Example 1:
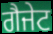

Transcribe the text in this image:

ਗੈਜੇਟ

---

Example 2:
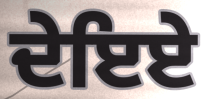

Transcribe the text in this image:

ਦੇਇਏ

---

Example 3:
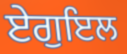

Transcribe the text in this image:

ਏਗੁਇਲ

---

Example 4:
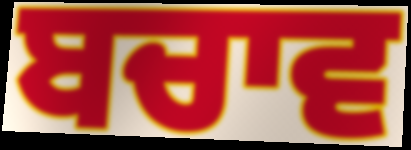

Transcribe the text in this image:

ਬਚਾਵ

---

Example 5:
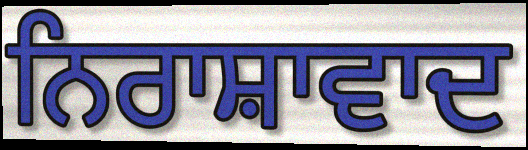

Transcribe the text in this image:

ਨਿਰਾਸ਼ਾਵਾਦ